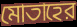
মোতাহের